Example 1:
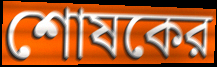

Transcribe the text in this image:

শোষকের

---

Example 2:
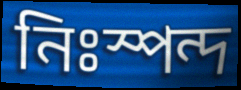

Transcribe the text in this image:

নিঃস্পন্দ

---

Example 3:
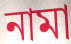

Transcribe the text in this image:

নামা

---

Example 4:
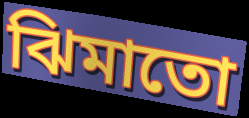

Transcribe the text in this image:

ঝিমাতো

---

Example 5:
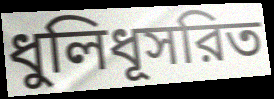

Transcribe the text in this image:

ধুলিধূসরিত